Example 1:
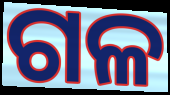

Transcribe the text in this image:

ଗଳ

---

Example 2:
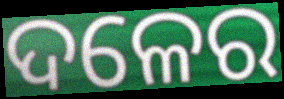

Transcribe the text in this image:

ଦଳେର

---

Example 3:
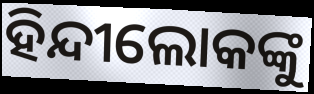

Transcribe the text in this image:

ହିନ୍ଦୀଲୋକଙ୍କୁ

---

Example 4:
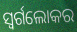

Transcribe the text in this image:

ସ୍ୱର୍ଗଲୋକର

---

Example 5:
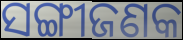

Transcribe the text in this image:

ସଙ୍ଗୀଜଣକ